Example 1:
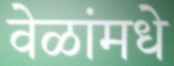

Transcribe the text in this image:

वेळांमधे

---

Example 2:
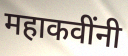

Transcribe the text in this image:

महाकवींनी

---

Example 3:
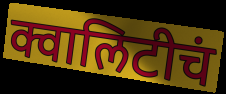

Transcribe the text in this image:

क्वालिटीचं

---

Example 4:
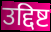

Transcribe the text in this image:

उद्दिष्ट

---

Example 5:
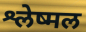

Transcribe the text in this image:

श्लेष्मल